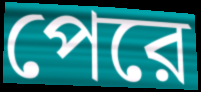
পেরে